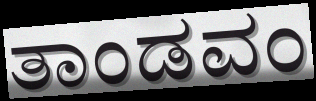
ತಾಂಡವಂ